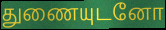
துணையுடனோ